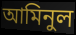
আমিনুল